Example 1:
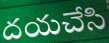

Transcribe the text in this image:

దయచేసి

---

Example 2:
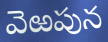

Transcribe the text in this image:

వెఱపున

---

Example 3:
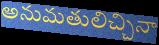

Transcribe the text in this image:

అనుమతులిచ్చినా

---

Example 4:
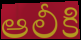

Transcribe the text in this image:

ఆలీకి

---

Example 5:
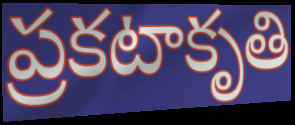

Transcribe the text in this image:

ప్రకటాకృతి